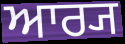
ਆਰ੍ਯ